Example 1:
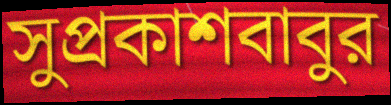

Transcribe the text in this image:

সুপ্রকাশবাবুর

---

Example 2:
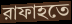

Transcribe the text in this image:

রাফাহতে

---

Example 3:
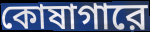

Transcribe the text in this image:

কোষাগারে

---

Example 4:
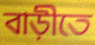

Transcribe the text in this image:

বাড়ীতে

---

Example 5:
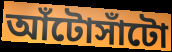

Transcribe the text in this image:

আঁটোসাঁটো